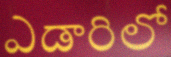
ఎడారిలో